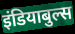
इंडियाबुल्स